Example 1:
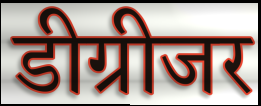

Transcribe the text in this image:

डीग्रीजर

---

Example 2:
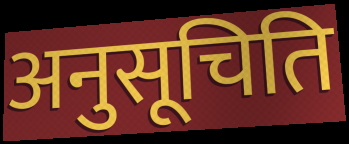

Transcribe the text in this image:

अनुसूचिति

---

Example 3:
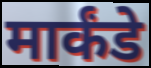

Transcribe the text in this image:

मार्कंडे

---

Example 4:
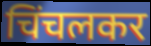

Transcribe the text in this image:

चिंचलकर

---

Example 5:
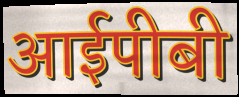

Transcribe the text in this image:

आईपीबी